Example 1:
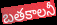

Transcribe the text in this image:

బతకాలనీ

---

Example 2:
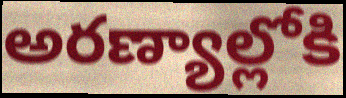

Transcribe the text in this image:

అరణ్యాల్లోకి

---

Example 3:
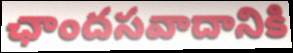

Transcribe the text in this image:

ఛాందసవాదానికి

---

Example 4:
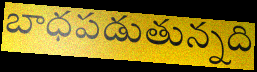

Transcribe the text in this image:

బాధపడుతున్నది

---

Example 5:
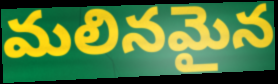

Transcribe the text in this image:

మలినమైన